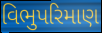
વિભુપરિમાણ